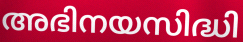
അഭിനയസിദ്ധി